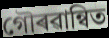
গৌৰৱান্বিত